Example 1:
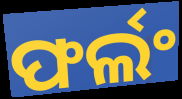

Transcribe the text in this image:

ଫର୍ଲଂ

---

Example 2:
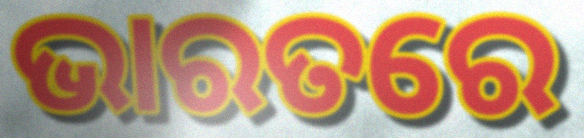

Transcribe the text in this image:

ଭାରତରେ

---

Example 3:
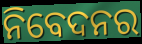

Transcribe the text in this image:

ନିବେଦନର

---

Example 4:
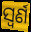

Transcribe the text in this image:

ସ୍ୱର୍ଣ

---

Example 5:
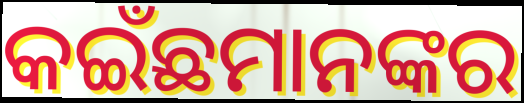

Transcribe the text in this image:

କଇଁଛମାନଙ୍କର